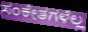
ಸಂಕೇತಗಳೆಲ್ಲ